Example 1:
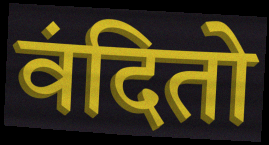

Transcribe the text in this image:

वंदितो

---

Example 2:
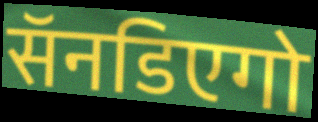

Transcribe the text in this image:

सॅनडिएगो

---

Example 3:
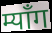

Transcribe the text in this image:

म्याँग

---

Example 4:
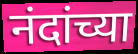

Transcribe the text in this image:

नंदांच्या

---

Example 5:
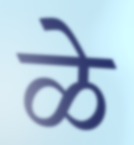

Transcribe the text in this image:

ळे